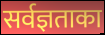
सर्वज्ञताका